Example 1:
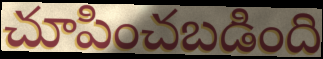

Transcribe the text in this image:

చూపించబడింది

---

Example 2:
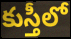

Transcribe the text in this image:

కుస్తీలో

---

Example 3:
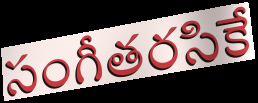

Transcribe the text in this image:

సంగీతరసికే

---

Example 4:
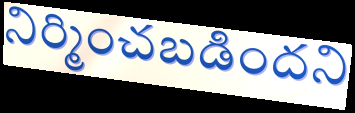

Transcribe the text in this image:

నిర్మించబడిందని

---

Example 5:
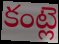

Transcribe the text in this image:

కంట్లె